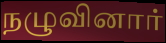
நழுவினார்